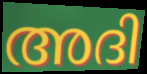
അദി